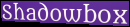
Shadowbox